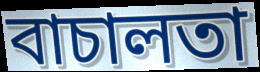
বাচালতা